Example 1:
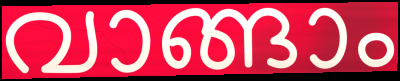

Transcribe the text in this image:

വാങ്ങാം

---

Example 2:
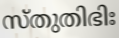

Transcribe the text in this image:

സ്തുതിഭിഃ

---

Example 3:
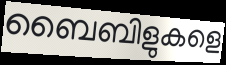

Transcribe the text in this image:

ബൈബിളുകളെ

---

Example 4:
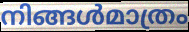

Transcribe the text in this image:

നിങ്ങൾമാത്രം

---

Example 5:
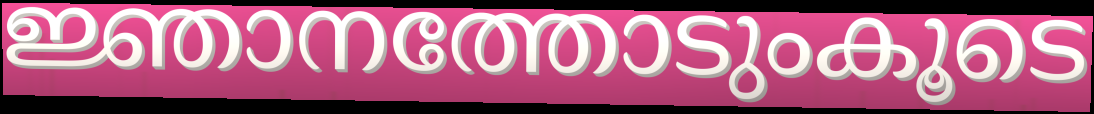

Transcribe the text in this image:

ജ്ഞാനത്തോടുംകൂടെ